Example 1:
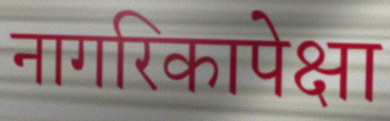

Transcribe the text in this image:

नागरिकापेक्षा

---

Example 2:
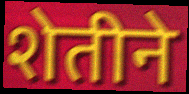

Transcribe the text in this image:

शेतीने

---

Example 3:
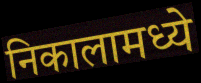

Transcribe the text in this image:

निकालामध्ये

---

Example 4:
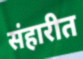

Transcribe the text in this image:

संहारीत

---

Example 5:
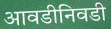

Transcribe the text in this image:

आवडीनिवडी